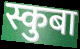
स्कुबा